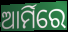
ଆର୍ମିରେ